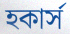
হকার্স